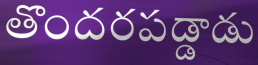
తొందరపడ్డాడు